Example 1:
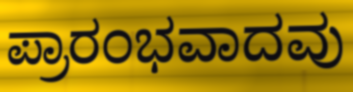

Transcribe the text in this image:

ಪ್ರಾರಂಭವಾದವು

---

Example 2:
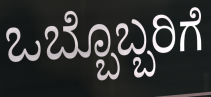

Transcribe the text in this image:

ಒಬ್ಬೊಬ್ಬರಿಗೆ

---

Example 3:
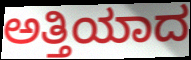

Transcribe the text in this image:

ಅತ್ತಿಯಾದ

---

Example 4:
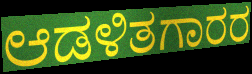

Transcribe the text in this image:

ಆಡಳಿತಗಾರರ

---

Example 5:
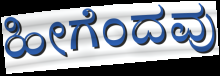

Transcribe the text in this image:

ಹೀಗೆಂದವು